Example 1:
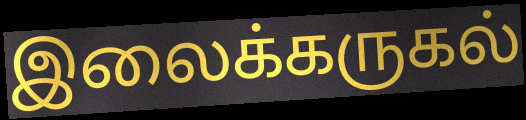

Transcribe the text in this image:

இலைக்கருகல்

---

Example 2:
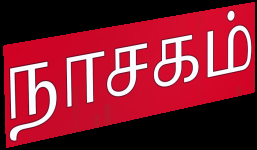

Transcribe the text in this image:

நாசகம்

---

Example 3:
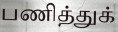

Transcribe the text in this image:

பணித்துக்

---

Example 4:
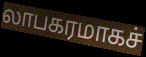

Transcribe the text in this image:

லாபகரமாகச்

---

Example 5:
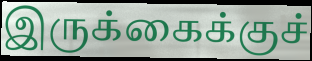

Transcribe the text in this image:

இருக்கைக்குச்